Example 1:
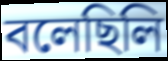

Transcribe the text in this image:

বলেছিলি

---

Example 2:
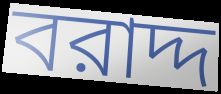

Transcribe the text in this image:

বরাদ্দ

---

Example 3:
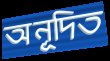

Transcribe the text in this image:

অনূদিত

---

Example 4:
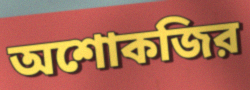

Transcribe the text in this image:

অশোকজির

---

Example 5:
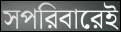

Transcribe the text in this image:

সপরিবারেই